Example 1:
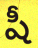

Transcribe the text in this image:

షీ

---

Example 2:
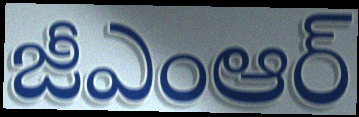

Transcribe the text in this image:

జీఎంఆర్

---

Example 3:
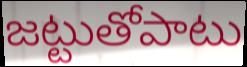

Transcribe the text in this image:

జట్టుతోపాటు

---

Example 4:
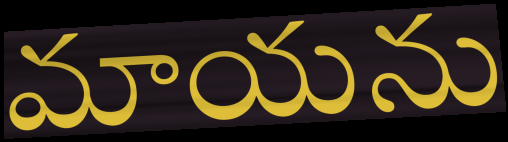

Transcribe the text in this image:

మాయను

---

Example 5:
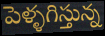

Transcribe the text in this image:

పెళ్ళగిస్తున్న